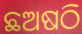
ଛଅଷଠି